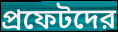
প্রফেটদের